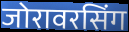
जोरावरसिंग